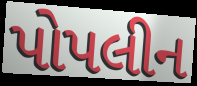
પોપલીન